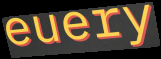
euery